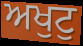
ਅਖੁਟੁ